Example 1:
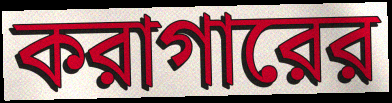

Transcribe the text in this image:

করাগারের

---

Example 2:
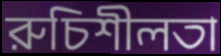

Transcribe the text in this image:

রুচিশীলতা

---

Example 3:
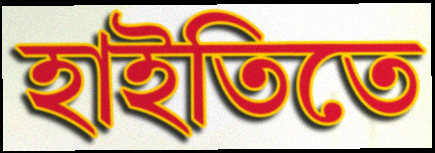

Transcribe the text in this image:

হাইতিতে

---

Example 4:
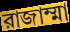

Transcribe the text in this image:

রাজাম্মা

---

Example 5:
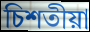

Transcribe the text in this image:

চিশতীয়া